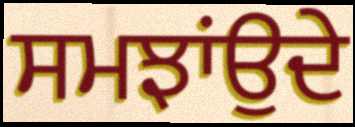
ਸਮਝਾਂਉਦੇ